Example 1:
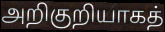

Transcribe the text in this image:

அறிகுறியாகத்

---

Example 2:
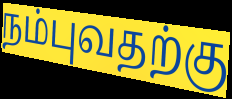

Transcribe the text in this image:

நம்புவதற்கு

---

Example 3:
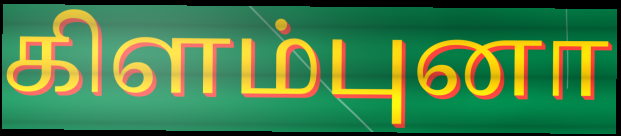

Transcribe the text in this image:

கிளம்புனா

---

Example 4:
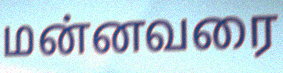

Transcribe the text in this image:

மன்னவரை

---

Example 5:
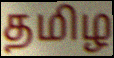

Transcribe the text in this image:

தமிழ